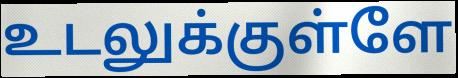
உடலுக்குள்ளே